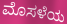
ಮೊಸಳೆಯ